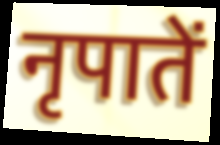
नृपातें